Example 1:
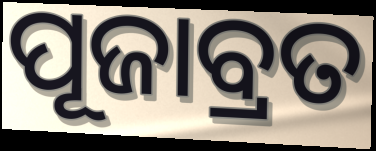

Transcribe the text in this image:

ପୂଜାବ୍ରତ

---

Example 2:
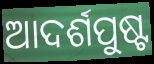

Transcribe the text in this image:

ଆଦର୍ଶପୁଷ୍ଟ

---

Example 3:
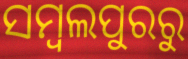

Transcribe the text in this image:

ସମ୍ବଲପୁରରୁ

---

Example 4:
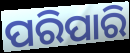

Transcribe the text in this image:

ପରିପାରି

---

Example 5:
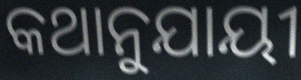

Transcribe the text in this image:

କଥାନୁଯାୟୀ